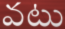
వటు